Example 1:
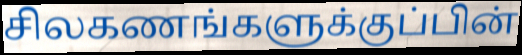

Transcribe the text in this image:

சிலகணங்களுக்குப்பின்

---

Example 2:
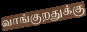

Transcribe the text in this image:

வாங்குறதுக்கு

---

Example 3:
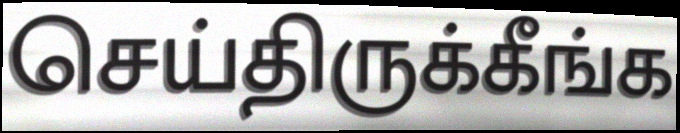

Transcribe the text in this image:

செய்திருக்கீங்க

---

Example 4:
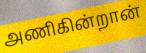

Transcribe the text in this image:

அணிகின்றான்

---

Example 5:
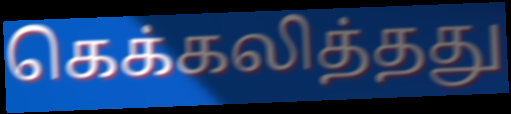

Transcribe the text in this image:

கெக்கலித்தது